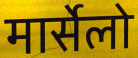
मार्सेलो